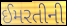
ઈમરતીની